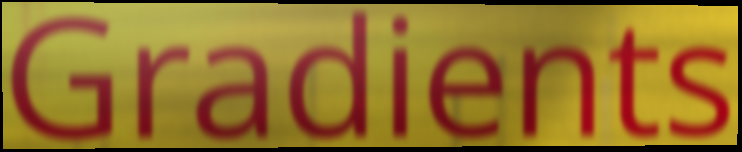
Gradients